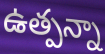
ఉత్పన్నా